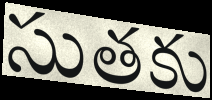
సుతకు